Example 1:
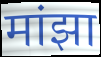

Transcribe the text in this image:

मांझा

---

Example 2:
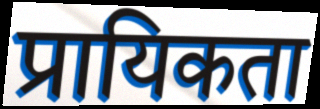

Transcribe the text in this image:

प्रायिकता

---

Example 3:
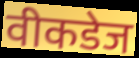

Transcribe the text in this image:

वीकडेज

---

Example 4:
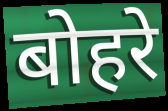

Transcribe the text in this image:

बोहरे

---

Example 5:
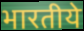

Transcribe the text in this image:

भारतीये